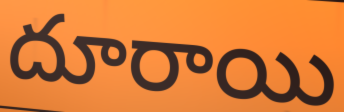
దూరాయి